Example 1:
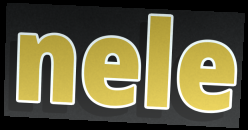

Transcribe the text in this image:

nele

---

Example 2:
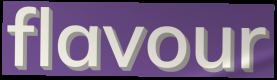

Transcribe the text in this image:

flavour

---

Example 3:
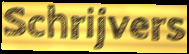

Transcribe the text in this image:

Schrijvers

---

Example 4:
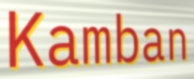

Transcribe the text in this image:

Kamban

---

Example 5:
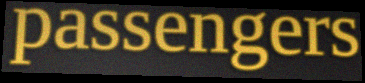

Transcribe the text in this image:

passengers